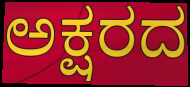
ಅಕ್ಷರದ